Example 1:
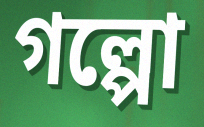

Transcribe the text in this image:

গল্পো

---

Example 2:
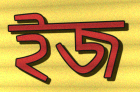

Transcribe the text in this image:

ইজ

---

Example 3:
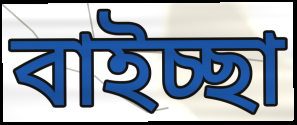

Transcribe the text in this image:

বাইচ্ছা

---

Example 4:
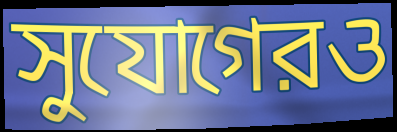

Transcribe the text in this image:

সুযোগেরও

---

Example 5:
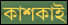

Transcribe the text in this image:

কাশকাই